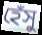
হেঁসু